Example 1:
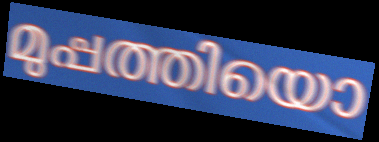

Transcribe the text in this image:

മുപ്പത്തിയൊ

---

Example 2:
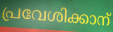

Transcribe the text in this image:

പ്രവേശിക്കാന്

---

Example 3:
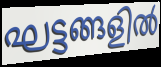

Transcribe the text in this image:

ഘട്ടങ്ങളിൽ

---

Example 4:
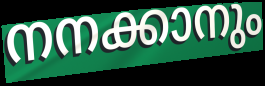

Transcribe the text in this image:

നനക്കാനും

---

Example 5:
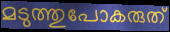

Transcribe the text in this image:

മടുത്തുപോകരുത്